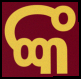
ଙ୍କ